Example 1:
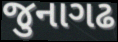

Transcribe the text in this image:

જુનાગઢ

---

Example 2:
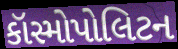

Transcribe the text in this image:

કૉસ્મોપોલિટન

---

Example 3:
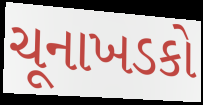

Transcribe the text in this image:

ચૂનાખડકો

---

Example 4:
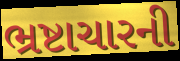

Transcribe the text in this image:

ભ્રષ્ટાચારની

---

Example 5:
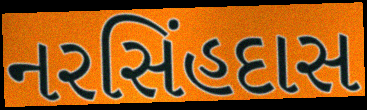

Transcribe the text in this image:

નરસિંહદાસ